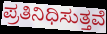
ಪ್ರತಿನಿಧಿಸುತ್ತವೆ